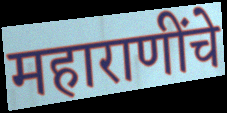
महाराणींचे